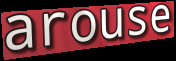
arouse